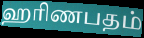
ஹரிணபதம்